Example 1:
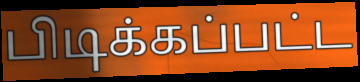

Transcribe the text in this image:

பிடிக்கப்பட்ட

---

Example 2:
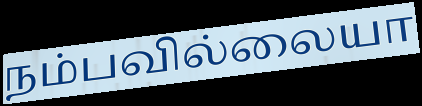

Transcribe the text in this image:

நம்பவில்லையா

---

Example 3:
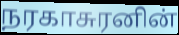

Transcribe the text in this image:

நரகாசுரனின்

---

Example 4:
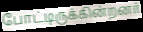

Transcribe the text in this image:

போட்டிருக்கின்றனர்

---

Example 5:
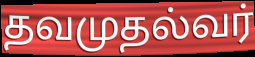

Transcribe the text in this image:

தவமுதல்வர்